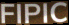
FIPIC